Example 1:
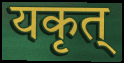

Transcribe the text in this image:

यकृत्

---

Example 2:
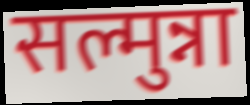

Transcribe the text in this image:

सल्मुन्ना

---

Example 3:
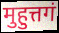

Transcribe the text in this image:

मुहुत्तगं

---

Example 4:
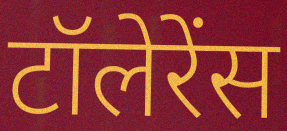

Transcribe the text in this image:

टॉलेरेंस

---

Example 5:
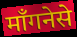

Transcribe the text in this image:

माँगनेसे